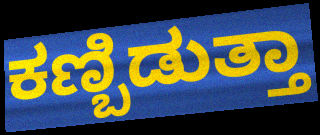
ಕಣ್ಬಿಡುತ್ತಾ